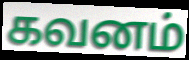
கவனம்